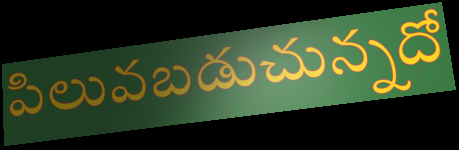
పిలువబడుచున్నదో